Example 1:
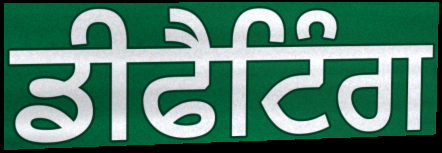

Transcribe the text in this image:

ਡੀਫੈਟਿੰਗ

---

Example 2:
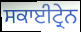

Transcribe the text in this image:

ਸਕਾਈਟ੍ਰੇਨ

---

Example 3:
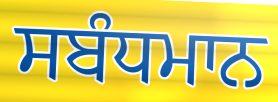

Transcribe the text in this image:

ਸਬੰਧਮਾਨ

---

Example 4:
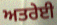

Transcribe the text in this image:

ਅਤਰੇਈ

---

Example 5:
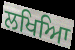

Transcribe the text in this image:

ਲਖਿਆਿ